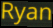
Ryan